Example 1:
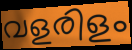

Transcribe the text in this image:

വളരിളം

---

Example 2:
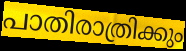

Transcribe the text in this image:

പാതിരാത്രിക്കും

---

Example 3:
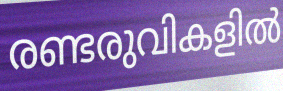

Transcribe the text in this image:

രണ്ടരുവികളിൽ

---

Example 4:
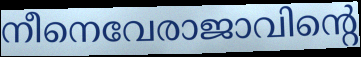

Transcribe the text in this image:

നീനെവേരാജാവിന്റെ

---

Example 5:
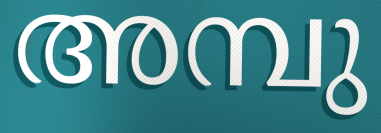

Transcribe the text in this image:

അമ്പു